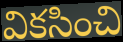
వికసించి